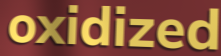
oxidized